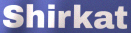
Shirkat